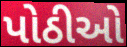
પોઠીઓ